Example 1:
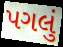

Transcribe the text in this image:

પગલું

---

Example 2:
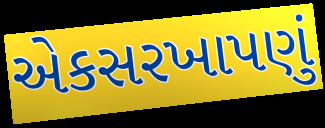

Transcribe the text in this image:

એકસરખાપણું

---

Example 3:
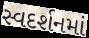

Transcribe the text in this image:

સ્વદર્શનમાં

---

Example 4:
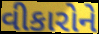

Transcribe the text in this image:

વીકારોને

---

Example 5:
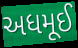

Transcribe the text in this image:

અધમૂઈ